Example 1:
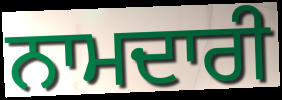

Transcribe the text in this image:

ਨਾਮਦਾਰੀ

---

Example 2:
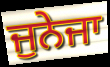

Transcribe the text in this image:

ਜੁਨੇਜਾ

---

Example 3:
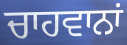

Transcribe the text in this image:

ਚਾਹਵਾਨਾਂ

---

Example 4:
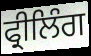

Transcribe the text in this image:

ਫ੍ਰੀਲਿੰਗ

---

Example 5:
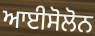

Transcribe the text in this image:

ਆਈਸੋਲੋਨ